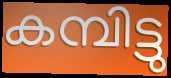
കമ്പിട്ടു